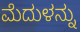
ಮೆದುಳನ್ನು